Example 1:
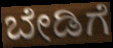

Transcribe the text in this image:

ಬೇಡಿಗೆ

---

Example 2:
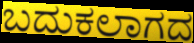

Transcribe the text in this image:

ಬದುಕಲಾಗದ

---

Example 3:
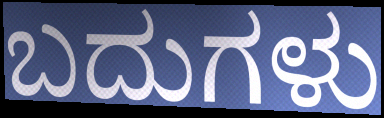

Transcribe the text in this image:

ಬದುಗಳು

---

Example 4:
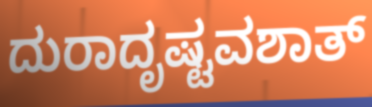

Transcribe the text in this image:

ದುರಾದೃಷ್ಟವಶಾತ್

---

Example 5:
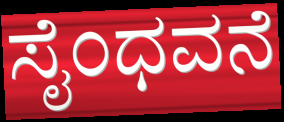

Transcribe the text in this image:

ಸೈಂಧವನೆ